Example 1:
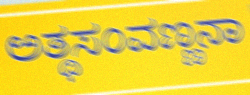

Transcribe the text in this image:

ಅತ್ಥಸಂವಣ್ಣನಾ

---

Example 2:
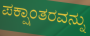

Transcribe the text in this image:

ಪಕ್ಷಾಂತರವನ್ನು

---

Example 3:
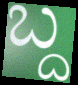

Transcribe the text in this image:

ಬ್ದ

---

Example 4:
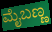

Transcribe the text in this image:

ಮೈಬಣ್ಣ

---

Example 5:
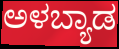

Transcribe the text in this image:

ಅಳಬ್ಯಾಡ